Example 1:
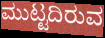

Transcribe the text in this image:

ಮುಟ್ಟದಿರುವ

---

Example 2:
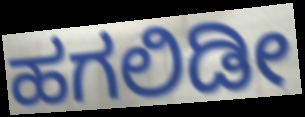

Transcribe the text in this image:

ಹಗಲಿಡೀ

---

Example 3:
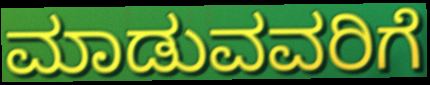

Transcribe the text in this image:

ಮಾಡುವವರಿಗೆ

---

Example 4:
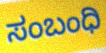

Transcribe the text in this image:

ಸಂಬಂಧಿ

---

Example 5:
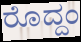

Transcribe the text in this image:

ರೊದ್ದಂ